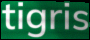
tigris